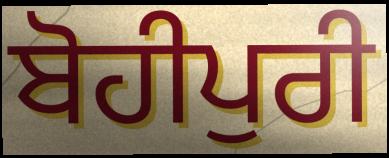
ਬੋਹੀਪੁਰੀ